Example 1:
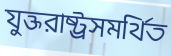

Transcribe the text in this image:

যুক্তরাষ্ট্রসমর্থিত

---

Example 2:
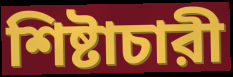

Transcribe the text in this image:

শিষ্টাচারী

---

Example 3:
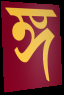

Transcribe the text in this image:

ঙ্গ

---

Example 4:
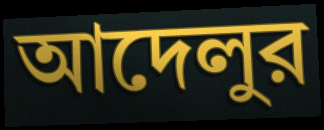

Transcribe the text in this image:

আদেলুর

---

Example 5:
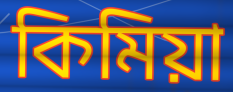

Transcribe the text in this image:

কিমিয়া